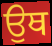
ਉਥ